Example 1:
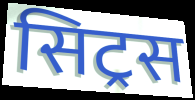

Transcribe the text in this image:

सिट्रस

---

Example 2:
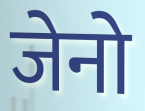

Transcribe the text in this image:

जेनो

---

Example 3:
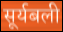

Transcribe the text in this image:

सूर्यबली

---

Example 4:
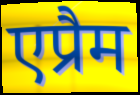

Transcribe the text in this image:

एप्रैम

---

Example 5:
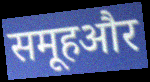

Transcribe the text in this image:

समूहऔर